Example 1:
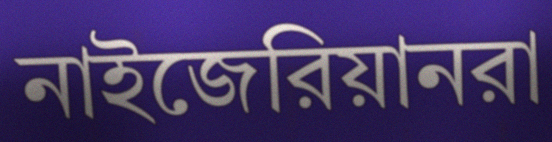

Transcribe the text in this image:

নাইজেরিয়ানরা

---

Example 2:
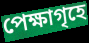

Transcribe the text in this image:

পেক্ষাগৃহে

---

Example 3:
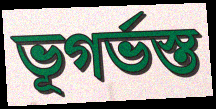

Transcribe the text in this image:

ভূগর্ভস্ত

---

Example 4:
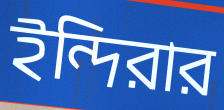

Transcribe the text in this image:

ইন্দিরার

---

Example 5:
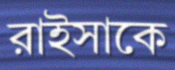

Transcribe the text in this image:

রাইসাকে